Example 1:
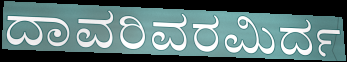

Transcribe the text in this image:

ದಾವರಿವರಮಿರ್ದ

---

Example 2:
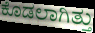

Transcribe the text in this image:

ಕೊಡಲಾಗಿತ್ತು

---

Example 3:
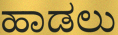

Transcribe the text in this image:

ಹಾಡಲು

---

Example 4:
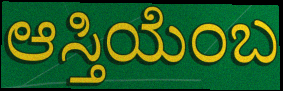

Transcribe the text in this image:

ಆಸ್ತಿಯೆಂಬ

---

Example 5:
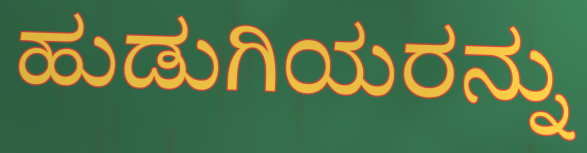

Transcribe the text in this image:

ಹುಡುಗಿಯರನ್ನು